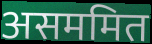
असममित